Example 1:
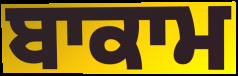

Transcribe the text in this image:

ਬਾਕਾਮ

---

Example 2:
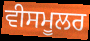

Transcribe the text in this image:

ਵੀਸਮੂਲਰ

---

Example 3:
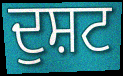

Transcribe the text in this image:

ਦੁਸ਼ਟ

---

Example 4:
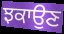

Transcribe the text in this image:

ਝਕਾਉਣ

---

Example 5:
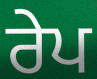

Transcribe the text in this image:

ਰੇਪ